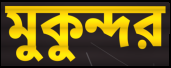
মুকুন্দর